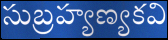
సుబ్రహ్యణ్యకవి